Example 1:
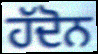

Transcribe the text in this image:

ਹੱਦੋਨ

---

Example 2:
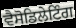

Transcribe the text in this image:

ਵੈਸੋਡਿਲੇਟਿੰਗ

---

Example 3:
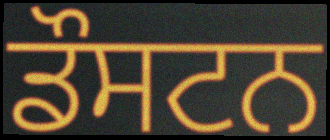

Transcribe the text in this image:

ਡੌਸਟਨ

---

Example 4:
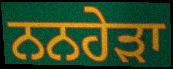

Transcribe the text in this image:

ਨਨਹੇੜਾ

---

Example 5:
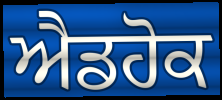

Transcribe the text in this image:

ਐਡਹੋਕ